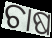
ଚାଷ